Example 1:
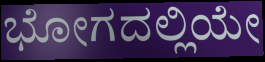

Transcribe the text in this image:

ಭೋಗದಲ್ಲಿಯೇ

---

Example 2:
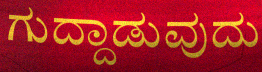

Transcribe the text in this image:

ಗುದ್ದಾಡುವುದು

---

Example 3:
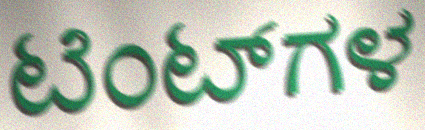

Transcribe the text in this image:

ಟೆಂಟ್‌ಗಳ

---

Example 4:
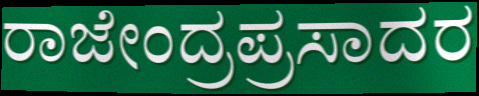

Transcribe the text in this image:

ರಾಜೇಂದ್ರಪ್ರಸಾದರ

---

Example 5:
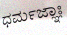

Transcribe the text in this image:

ಧರ್ಮಜ್ಞಾಃ